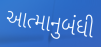
આત્માનુબંધી